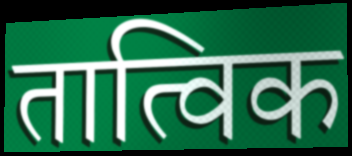
तात्विक